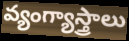
వ్యంగ్యాస్త్రాలు